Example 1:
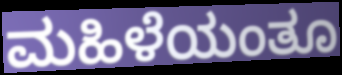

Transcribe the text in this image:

ಮಹಿಳೆಯಂತೂ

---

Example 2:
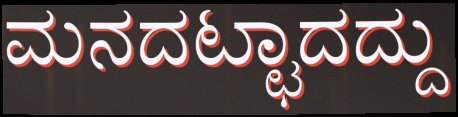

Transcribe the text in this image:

ಮನದಟ್ಟಾದದ್ದು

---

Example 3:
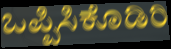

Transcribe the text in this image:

ಒಪ್ಪಿಸಿಕೊಡಿರಿ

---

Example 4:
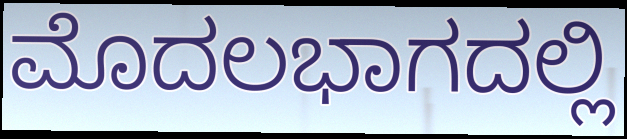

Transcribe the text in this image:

ಮೊದಲಭಾಗದಲ್ಲಿ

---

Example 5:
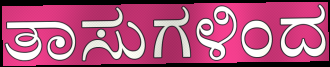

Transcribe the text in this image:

ತಾಸುಗಳಿಂದ